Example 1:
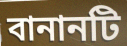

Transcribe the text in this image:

বানানটি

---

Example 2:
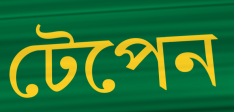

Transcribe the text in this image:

টেপেন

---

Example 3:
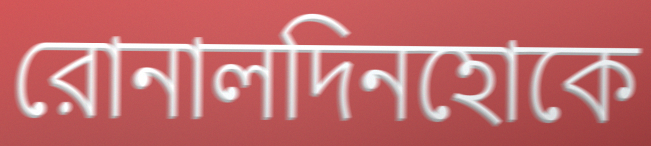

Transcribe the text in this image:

রোনালদিনহোকে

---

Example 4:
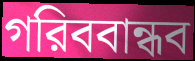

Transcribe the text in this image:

গরিববান্ধব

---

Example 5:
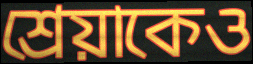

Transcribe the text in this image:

শ্রেয়াকেও